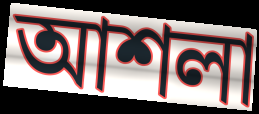
আশলা